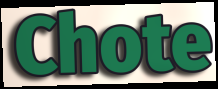
Chote